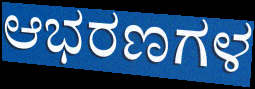
ಆಭರಣಗಳ